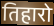
तिहारो